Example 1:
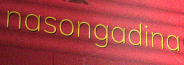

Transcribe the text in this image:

nasongadina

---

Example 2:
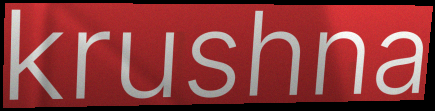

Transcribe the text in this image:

krushna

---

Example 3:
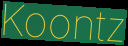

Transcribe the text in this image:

Koontz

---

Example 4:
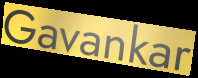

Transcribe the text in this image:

Gavankar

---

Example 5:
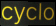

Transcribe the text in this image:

cyclo